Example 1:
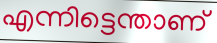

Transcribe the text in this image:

എന്നിട്ടെന്താണ്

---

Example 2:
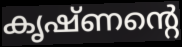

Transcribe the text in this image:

കൃഷ്ണന്റെ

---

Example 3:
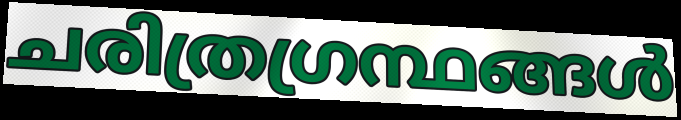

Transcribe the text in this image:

ചരിത്രഗ്രന്ഥങ്ങൾ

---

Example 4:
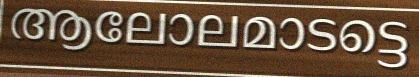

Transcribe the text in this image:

ആലോലമാടട്ടെ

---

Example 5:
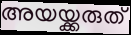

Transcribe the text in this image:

അയയ്ക്കരുത്